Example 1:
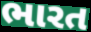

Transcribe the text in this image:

ભારત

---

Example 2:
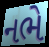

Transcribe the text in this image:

નભે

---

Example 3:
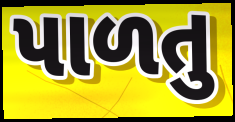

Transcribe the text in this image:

પાળતુ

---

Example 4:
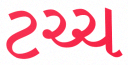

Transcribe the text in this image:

ટચ્ચ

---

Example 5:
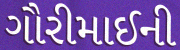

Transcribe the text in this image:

ગૌરીમાઈની